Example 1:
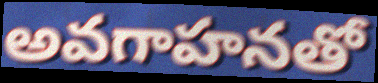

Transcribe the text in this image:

అవగాహనతో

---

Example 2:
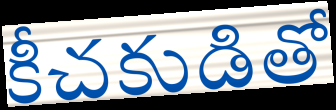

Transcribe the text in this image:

కీచకుడితో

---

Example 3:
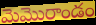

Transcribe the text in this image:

మెమొరాండం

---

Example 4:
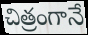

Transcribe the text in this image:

చిత్రంగానే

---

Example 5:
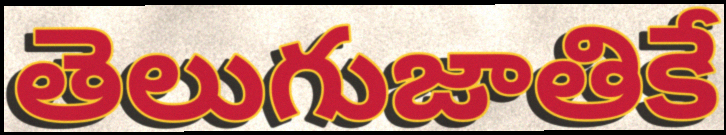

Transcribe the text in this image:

తెలుగుజాతికే